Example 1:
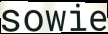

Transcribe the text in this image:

sowie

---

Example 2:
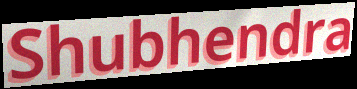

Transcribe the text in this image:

Shubhendra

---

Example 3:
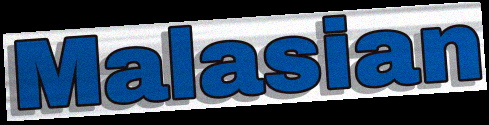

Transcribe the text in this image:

Malasian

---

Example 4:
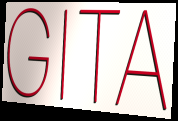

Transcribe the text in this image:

GITA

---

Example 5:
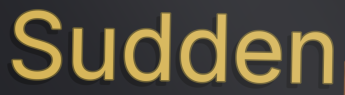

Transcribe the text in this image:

Sudden